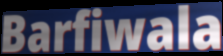
Barfiwala